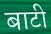
बाटी